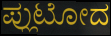
ಪ್ಲುಟೋದ